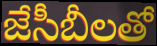
జేసీబీలతో